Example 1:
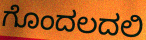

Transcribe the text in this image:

ಗೊಂದಲದಲಿ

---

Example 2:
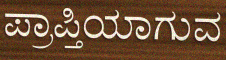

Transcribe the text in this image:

ಪ್ರಾಪ್ತಿಯಾಗುವ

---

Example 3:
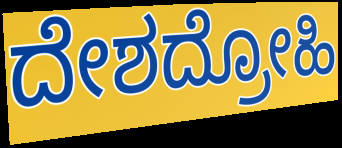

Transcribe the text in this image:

ದೇಶದ್ರೋಹಿ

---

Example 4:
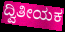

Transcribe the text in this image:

ದ್ವಿತೀಯಕ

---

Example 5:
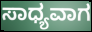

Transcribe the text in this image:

ಸಾಧ್ಯವಾಗ